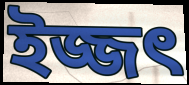
ইজ্জৎ